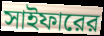
সাইফারের